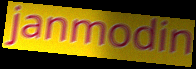
janmodin